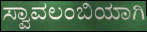
ಸ್ವಾವಲಂಬಿಯಾಗಿ